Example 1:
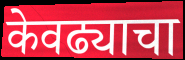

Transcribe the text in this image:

केवढ्याचा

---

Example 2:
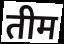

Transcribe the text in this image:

तीम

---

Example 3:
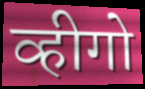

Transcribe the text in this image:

व्हीगो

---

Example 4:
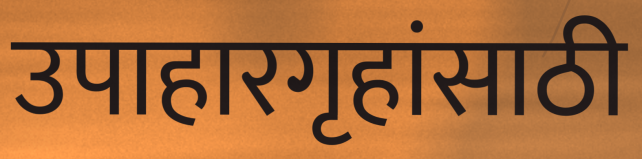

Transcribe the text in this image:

उपाहारगृहांसाठी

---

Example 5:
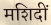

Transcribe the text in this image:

मशिदीं